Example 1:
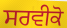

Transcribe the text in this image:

ਸਰਵੀਕੋ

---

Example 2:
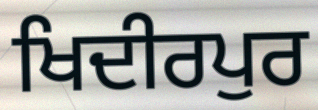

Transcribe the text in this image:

ਖਿਦੀਰਪੁਰ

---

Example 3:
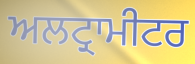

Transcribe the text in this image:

ਅਲਟ੍ਰਾਮੀਟਰ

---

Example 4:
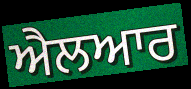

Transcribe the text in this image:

ਐਲਆਰ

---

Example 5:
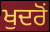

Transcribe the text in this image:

ਖੁਦਰੋਂ